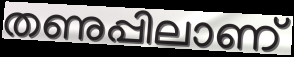
തണുപ്പിലാണ്